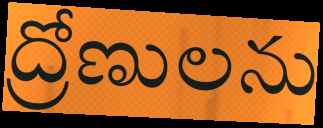
ద్రోణులను